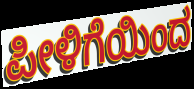
ಪೀಳಿಗೆಯಿಂದ